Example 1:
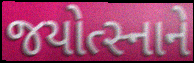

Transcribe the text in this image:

જયોત્સ્નાને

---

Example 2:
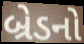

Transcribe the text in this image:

બ્રેડનો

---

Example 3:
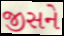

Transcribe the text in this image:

જીસને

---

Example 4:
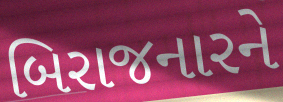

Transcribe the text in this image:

બિરાજનારને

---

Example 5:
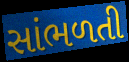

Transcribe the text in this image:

સાંભળતી